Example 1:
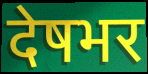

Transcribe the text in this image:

देषभर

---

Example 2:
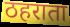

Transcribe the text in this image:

ठहराता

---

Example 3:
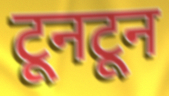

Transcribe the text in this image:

टूनटून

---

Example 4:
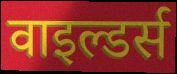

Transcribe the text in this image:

वाइल्डर्स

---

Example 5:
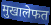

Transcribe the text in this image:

मुखालेफत